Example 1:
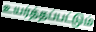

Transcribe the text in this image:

உயர்த்தப்பட்டும்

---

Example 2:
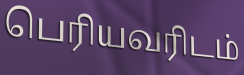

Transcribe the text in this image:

பெரியவரிடம்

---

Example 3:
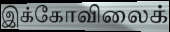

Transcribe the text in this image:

இக்கோவிலைக்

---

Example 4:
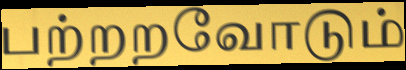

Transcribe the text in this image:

பற்றறவோடும்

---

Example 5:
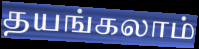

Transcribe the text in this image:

தயங்கலாம்